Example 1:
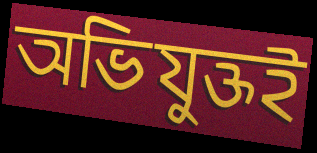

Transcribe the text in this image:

অভিযুক্তই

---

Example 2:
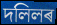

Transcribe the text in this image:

দলিলৰ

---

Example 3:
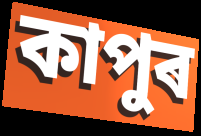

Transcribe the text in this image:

কাপুৰ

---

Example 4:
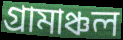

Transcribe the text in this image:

গ্ৰামাঞ্চল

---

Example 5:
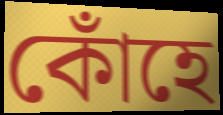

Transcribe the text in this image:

কোঁহে